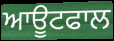
ਆਊਟਫਾਲ